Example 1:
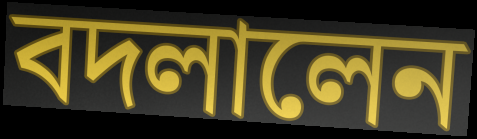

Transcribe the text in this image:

বদলালেন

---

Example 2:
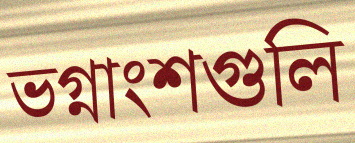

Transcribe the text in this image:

ভগ্নাংশগুলি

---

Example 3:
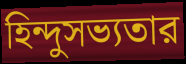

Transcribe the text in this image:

হিন্দুসভ্যতার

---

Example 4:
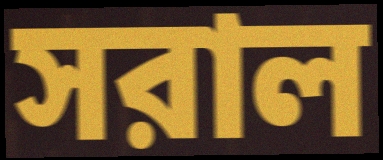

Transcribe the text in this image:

সরাল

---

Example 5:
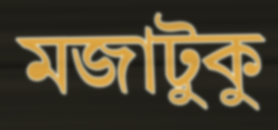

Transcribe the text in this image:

মজাটুকু